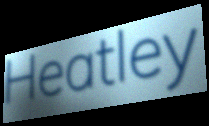
Heatley